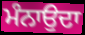
ਮੰਨਾਉਦਾ